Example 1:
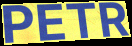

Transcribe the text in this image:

PETR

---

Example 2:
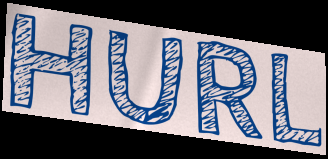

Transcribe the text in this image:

HURL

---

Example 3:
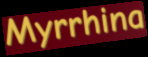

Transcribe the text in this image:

Myrrhina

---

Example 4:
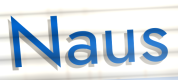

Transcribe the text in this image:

Naus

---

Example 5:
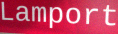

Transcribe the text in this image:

Lamport